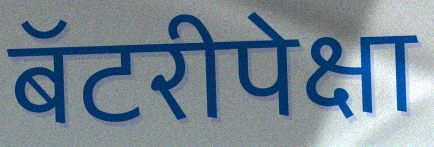
बॅटरीपेक्षा